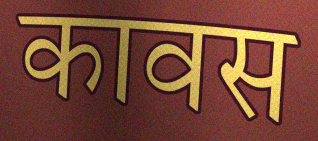
कावस